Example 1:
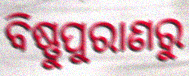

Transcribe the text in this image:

ବିଷ୍ଣୁପୁରାଣରୁ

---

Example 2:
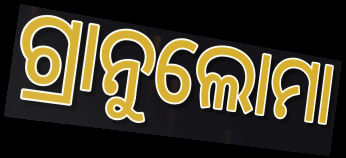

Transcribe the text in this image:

ଗ୍ରାନୁଲୋମା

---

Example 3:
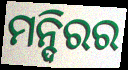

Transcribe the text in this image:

ମନ୍ଦିରର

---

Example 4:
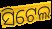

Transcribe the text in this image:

ସିଟେଲ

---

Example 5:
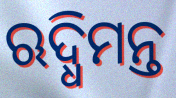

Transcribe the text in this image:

ଋଦ୍ଧିମନ୍ତ